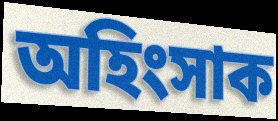
অহিংসাক